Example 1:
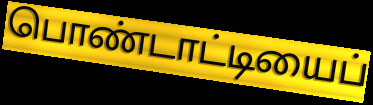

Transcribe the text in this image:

பொண்டாட்டியைப்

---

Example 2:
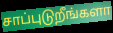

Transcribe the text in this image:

சாப்புடுறீங்களா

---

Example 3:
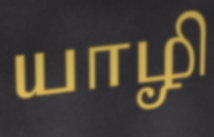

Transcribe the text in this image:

யாழி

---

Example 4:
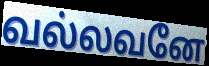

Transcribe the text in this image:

வல்லவனே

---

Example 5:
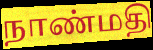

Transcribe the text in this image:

நாண்மதி